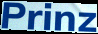
Prinz